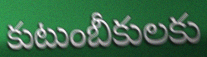
కుటుంబీకులకు